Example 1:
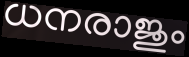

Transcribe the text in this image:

ധനരാജും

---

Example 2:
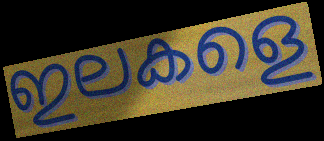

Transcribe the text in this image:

ഇലകളെ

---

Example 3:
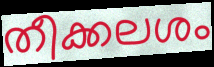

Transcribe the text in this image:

തീക്കലശം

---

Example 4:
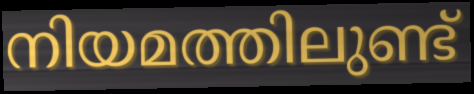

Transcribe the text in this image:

നിയമത്തിലുണ്ട്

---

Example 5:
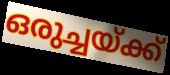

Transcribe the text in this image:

ഒരുച്ചയ്ക്ക്